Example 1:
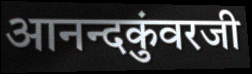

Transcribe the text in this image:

आनन्दकुंवरजी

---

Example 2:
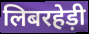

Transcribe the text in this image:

लिबरहेड़ी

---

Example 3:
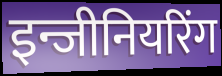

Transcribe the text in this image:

इन्जीनियरिंग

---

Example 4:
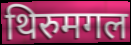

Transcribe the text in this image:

थिरुमगल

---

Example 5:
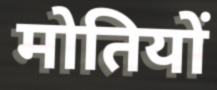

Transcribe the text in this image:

मोतियों